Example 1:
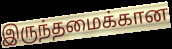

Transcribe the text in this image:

இருந்தமைக்கான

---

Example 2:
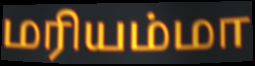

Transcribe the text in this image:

மரியம்மா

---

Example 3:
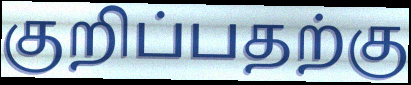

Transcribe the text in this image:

குறிப்பதற்கு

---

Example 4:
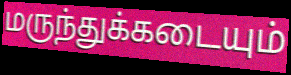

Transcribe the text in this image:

மருந்துக்கடையும்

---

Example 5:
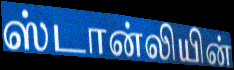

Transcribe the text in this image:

ஸ்டான்லியின்